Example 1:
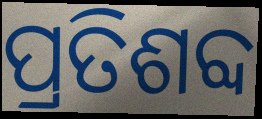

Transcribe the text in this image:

ପ୍ରତିଶବ୍ଦ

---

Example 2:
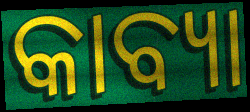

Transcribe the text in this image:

କାବ୍ୟା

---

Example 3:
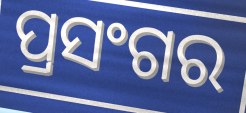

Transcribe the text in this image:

ପ୍ରସଂଗର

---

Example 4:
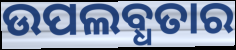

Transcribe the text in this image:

ଉପଲବ୍ଧତାର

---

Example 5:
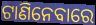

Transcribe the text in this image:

ଟାଣିନେବାରେ